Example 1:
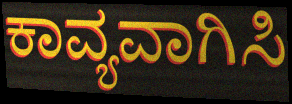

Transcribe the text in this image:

ಕಾವ್ಯವಾಗಿಸಿ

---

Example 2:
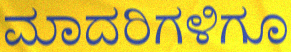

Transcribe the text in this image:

ಮಾದರಿಗಳಿಗೂ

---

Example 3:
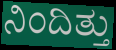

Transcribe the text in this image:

ನಿಂದಿತ್ತು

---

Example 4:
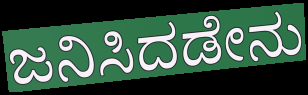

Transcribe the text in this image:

ಜನಿಸಿದಡೇನು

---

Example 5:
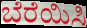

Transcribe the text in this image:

ಬೆರೆಯಿಸಿ